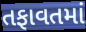
તફાવતમાં